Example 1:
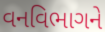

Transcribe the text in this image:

વનવિભાગને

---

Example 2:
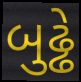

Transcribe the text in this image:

બુઢ્ઢે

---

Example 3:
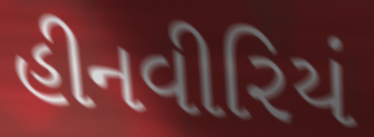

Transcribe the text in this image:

હીનવીરિયં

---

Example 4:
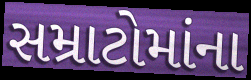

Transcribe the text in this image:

સમ્રાટોમાંના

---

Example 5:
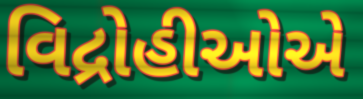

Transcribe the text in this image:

વિદ્રોહીઓએ